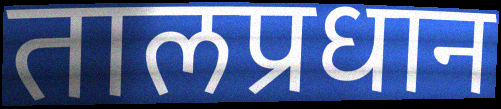
तालप्रधान